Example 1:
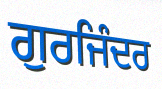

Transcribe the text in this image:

ਗੁਰਜਿੰਦਰ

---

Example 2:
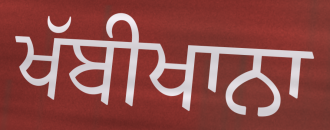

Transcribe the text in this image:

ਖੱਬੀਖਾਨਾ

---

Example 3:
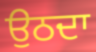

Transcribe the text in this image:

ਉਠਦਾ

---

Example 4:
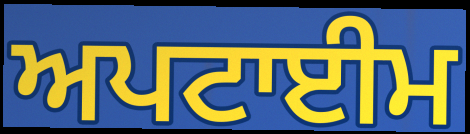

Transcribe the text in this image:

ਅਪਟਾਈਮ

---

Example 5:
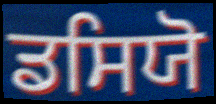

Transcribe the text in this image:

ਡਸਿਯੋ